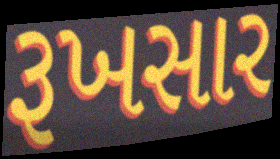
રૂખસાર